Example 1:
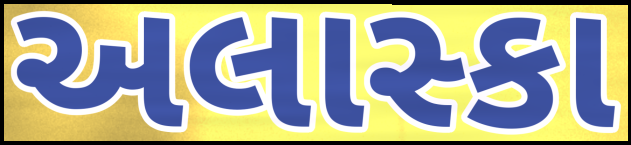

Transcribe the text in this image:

અલાસ્કા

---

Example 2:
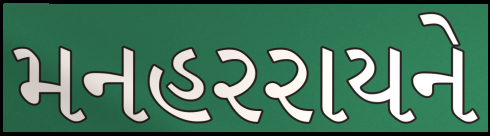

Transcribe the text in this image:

મનહરરાયને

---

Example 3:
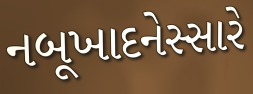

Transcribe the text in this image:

નબૂખાદનેસ્સારે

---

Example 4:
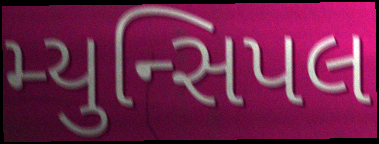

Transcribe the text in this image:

મ્યુન્સિપલ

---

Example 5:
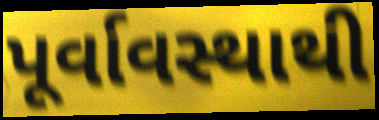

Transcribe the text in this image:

પૂર્વાવસ્થાથી